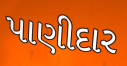
પાણીદાર